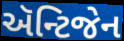
ઍન્ટિજેન